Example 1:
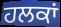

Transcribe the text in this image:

ਹਲਕਾਂ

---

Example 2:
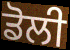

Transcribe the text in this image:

ਡੋਲੀ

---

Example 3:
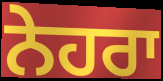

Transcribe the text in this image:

ਨੇਹਰਾ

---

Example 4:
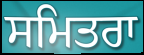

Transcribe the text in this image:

ਸਮਿਤਰਾ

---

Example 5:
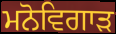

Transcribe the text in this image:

ਮਨੋਵਿਗਾੜ